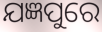
ଯଜ୍ଞପୁରେ